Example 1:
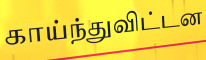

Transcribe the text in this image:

காய்ந்துவிட்டன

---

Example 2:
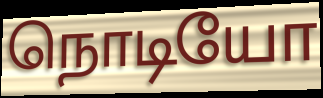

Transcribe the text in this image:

நொடியோ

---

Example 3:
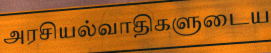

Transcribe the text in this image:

அரசியல்வாதிகளுடைய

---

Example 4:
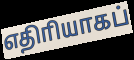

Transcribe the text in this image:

எதிரியாகப்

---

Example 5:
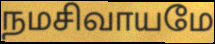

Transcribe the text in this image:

நமசிவாயமே